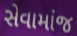
સેવામાંજ